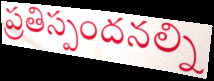
ప్రతిస్పందనల్ని